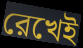
রেখেই